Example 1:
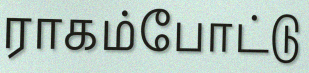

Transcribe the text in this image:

ராகம்போட்டு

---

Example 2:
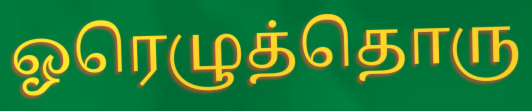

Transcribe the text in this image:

ஓரெழுத்தொரு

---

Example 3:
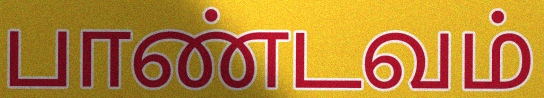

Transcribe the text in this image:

பாண்டவம்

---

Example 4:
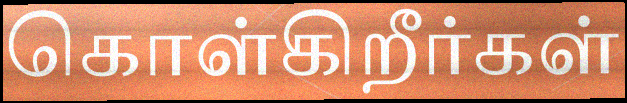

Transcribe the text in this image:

கொள்கிறீர்கள்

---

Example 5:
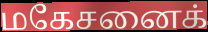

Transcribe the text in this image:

மகேசனைக்